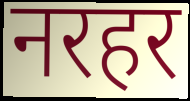
नरहर